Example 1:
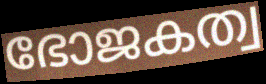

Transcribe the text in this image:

ഭോജകത്വ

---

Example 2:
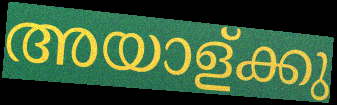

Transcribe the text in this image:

അയാള്ക്കു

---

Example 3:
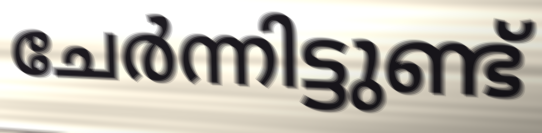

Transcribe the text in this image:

ചേർന്നിട്ടുണ്ട്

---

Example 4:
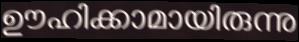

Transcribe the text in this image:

ഊഹിക്കാമായിരുന്നു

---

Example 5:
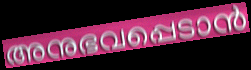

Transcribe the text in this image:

അനുഭവപ്പെടാൻ